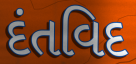
દંતવિદ